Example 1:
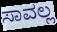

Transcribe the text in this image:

ಸಾವಲ್ಲ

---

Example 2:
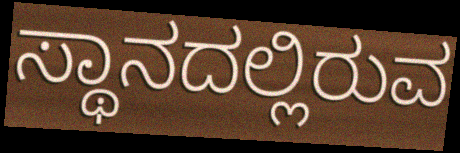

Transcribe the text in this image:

ಸ್ಥಾನದಲ್ಲಿರುವ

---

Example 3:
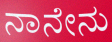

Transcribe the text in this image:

ನಾನೇನು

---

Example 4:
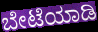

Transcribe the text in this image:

ಬೇಟೆಯಾಡಿ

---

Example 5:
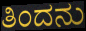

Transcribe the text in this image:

ತಿಂದನು